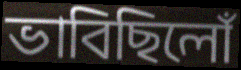
ভাবিছিলোঁ